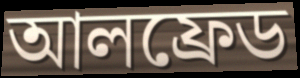
আলফ্ৰেড